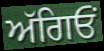
ਅੱਗਿਓਂ